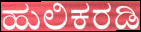
ಹುಲಿಕರಡಿ